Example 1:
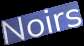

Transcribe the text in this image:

Noirs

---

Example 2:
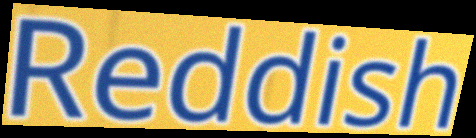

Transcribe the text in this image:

Reddish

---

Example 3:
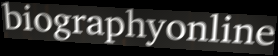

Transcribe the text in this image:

biographyonline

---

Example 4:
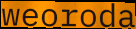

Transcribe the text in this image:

weoroda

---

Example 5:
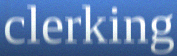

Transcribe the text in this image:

clerking